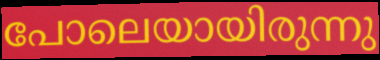
പോലെയായിരുന്നു